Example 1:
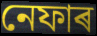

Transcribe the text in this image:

নেফাৰ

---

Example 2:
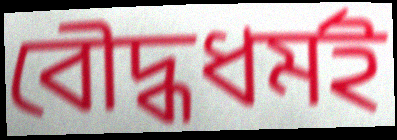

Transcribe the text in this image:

বৌদ্ধধৰ্মই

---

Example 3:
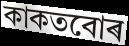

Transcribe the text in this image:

কাকতবোৰ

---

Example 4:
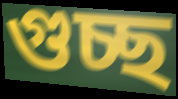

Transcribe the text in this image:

গুচ্ছ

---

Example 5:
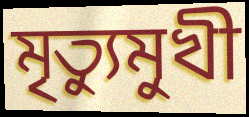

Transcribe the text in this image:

মৃত্যুমুখী